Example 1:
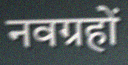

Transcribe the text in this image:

नवग्रहों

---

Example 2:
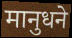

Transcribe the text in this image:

मानुधने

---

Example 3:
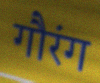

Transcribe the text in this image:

गौरंग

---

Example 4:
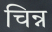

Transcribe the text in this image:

चिन्न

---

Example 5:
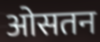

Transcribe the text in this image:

ओसतन